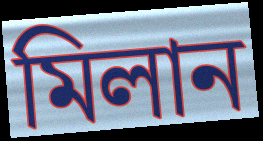
মিলান